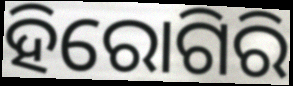
ହିରୋଗିରି